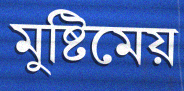
মুষ্টিমেয়